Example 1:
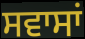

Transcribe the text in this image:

ਸਵਾਸਾਂ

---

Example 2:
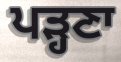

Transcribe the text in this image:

ਪੜ੍ਹਣਾ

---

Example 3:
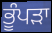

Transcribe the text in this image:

ਭੂੰਪੜਾ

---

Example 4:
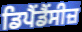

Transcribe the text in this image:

ਡਿਪੈਂਡੈਂਸੀਜ਼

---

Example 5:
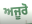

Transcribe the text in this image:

ਅਜੂਰੋ